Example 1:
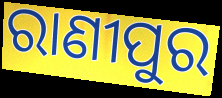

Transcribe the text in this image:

ରାଣୀପୁର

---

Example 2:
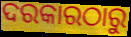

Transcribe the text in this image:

ଦରକାରଠାରୁ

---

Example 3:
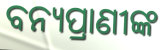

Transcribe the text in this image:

ବନ୍ୟପ୍ରାଣୀଙ୍କ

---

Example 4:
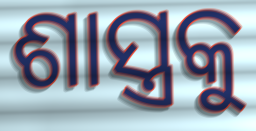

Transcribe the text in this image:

ଶାସ୍ତ୍ରକୁ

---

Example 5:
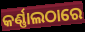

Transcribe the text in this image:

କର୍ଣ୍ଣାଲଠାରେ